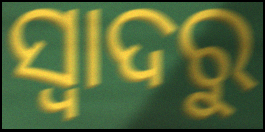
ସ୍ବାଦରୁ